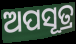
ଅପସୂତ୍ର